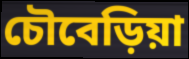
চৌবেড়িয়া